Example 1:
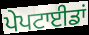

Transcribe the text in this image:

ਪੇਪਟਾਈਡਾਂ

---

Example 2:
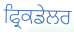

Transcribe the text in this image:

ਫ੍ਰਿਕਡੇਲਰ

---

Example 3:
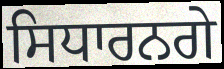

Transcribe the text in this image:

ਸਿਧਾਰਨਗੇ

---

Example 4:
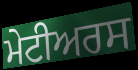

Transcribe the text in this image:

ਮੇਟੀਅਰਸ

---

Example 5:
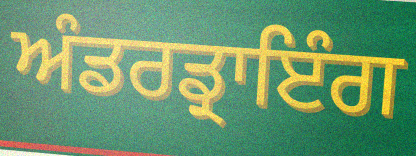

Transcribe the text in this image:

ਅੰਡਰਡ੍ਰਾਇੰਗ